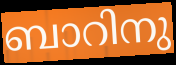
ബാറിനു